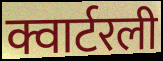
क्वार्टरली